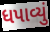
ધપાવ્યું